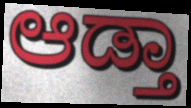
ಆಡ್ತಾ